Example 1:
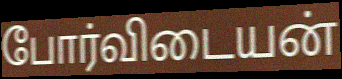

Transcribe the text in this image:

போர்விடையன்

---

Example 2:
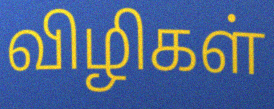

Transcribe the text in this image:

விழிகள்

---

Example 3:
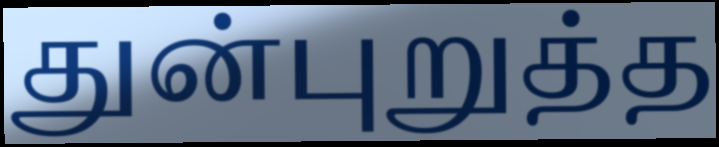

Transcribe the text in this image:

துன்புறுத்த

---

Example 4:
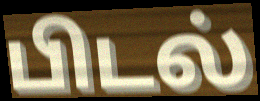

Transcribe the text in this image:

பிடல்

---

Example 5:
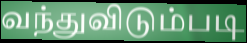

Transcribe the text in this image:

வந்துவிடும்படி